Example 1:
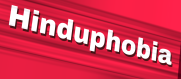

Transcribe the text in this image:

Hinduphobia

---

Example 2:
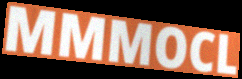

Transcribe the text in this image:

MMMOCL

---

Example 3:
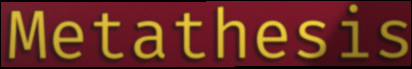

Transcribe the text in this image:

Metathesis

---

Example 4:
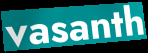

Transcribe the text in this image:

vasanth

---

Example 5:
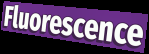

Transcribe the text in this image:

Fluorescence